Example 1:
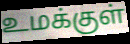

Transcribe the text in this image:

உமக்குள்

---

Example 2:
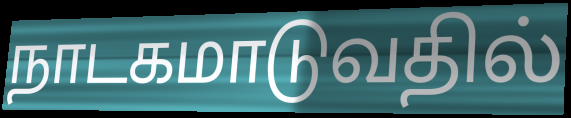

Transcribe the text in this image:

நாடகமாடுவதில்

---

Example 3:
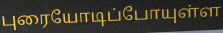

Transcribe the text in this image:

புரையோடிப்போயுள்ள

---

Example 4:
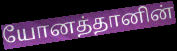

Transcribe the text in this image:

யோனத்தானின்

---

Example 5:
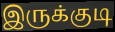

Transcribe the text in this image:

இருக்குடி